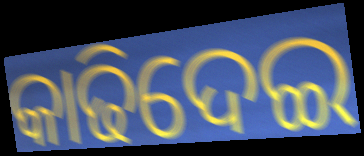
କାଢିଦେଇ